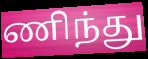
ணிந்து